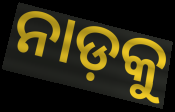
ନାଡ଼କୁ